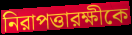
নিরাপত্তারক্ষীকে